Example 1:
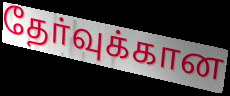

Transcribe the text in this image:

தேர்வுக்கான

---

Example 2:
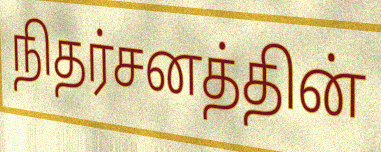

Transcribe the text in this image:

நிதர்சனத்தின்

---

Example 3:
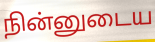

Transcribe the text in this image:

நின்னுடைய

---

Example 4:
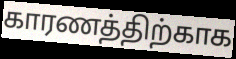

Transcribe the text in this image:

காரணத்திற்காக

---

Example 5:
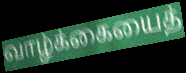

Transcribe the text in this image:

வாழ்க்கையைத்